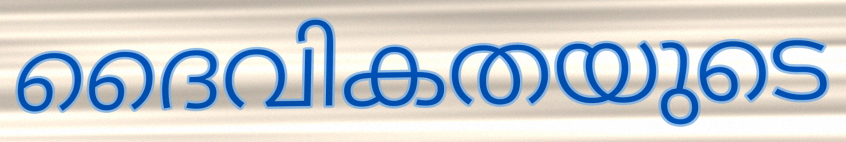
ദൈവികതയുടെ